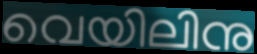
വെയിലിനു